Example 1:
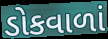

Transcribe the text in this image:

ડોકવાળાં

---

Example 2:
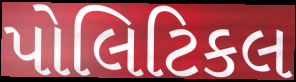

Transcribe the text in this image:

પોલિટિકલ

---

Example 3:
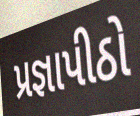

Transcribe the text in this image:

પ્રજ્ઞાપીઠો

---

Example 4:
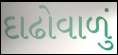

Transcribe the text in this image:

દાઢોવાળું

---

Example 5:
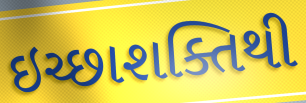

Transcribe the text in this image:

ઇચ્છાશક્તિથી